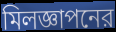
মিলজ্ঞাপনের